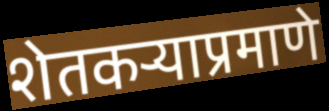
शेतकऱ्याप्रमाणे